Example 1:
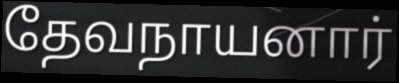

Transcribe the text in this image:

தேவநாயனார்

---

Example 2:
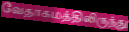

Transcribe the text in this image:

வேதாகமத்திலிருந்து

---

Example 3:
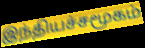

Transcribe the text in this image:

இந்தியச்சமூகம்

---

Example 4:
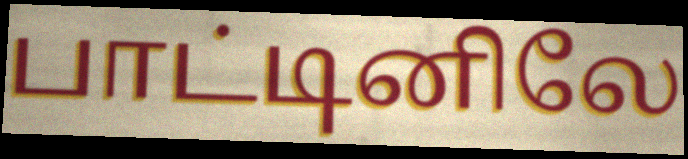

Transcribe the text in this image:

பாட்டினிலே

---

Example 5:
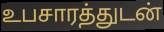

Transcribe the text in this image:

உபசாரத்துடன்